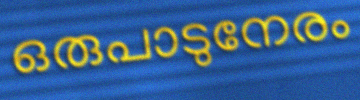
ഒരുപാടുനേരം